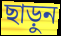
ছাড়ুন